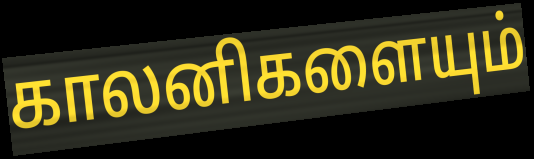
காலனிகளையும்